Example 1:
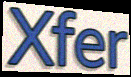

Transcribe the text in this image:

Xfer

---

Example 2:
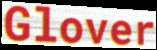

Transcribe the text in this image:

Glover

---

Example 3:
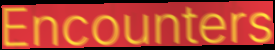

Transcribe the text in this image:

Encounters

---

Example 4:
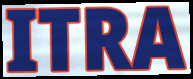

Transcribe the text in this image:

ITRA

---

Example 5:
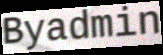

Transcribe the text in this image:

Byadmin